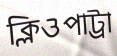
ক্লিওপাট্রা